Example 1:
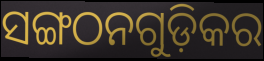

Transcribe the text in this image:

ସଙ୍ଗଠନଗୁଡ଼ିକର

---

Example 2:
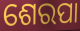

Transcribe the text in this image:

ଶେରପା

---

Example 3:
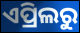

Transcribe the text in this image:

ଏପ୍ରିଲରୁ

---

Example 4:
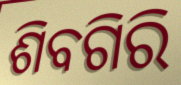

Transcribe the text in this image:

ଶିବଗିରି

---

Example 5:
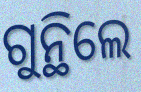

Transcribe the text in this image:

ଗୁନ୍ଥିଲେ